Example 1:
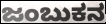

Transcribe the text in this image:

ಜಂಬುಕನ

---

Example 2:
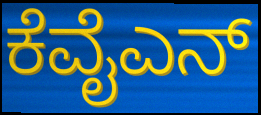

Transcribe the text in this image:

ಕೆವೈಎನ್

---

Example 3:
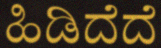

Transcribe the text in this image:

ಹಿಡಿದೆದೆ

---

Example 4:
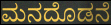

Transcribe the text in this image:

ಮನದೊಡನೆ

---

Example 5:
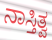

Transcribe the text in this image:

ನಾಸ್ತಿತ್ವ